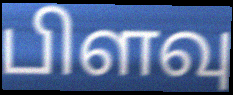
பிளவு